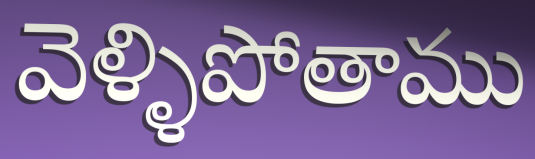
వెళ్ళిపోతాము